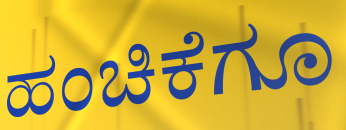
ಹಂಚಿಕೆಗೂ